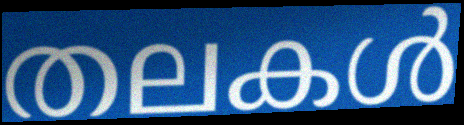
തലകൾ